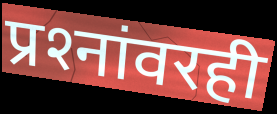
प्रश्नांवरही